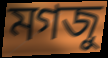
মগজু